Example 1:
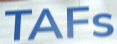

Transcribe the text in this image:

TAFs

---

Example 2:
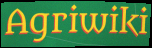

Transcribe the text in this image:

Agriwiki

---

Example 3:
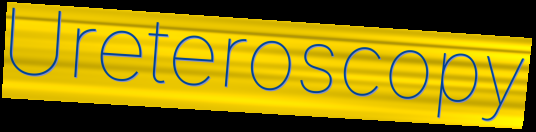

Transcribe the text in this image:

Ureteroscopy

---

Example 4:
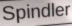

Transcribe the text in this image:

Spindler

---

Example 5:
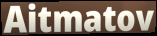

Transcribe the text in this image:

Aitmatov